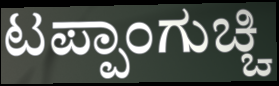
ಟಪ್ಪಾಂಗುಚ್ಚಿ